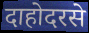
दाहोदरसे